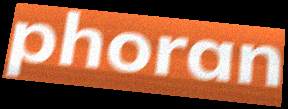
phoran